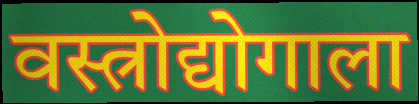
वस्त्रोद्योगाला